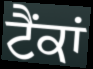
ਟੈਂਕਾਂ